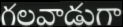
గలవాడుగా